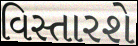
વિસ્તારશે